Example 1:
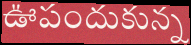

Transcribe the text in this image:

ఊపందుకున్న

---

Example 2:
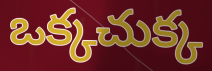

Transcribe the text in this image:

ఒక్కచుక్క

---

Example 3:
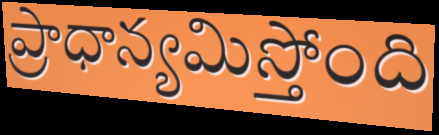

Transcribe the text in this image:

ప్రాధాన్యమిస్తోంది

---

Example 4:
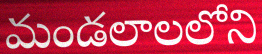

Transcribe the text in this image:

మండలాలలోని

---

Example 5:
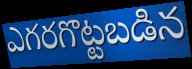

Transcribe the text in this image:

ఎగరగొట్టబడిన